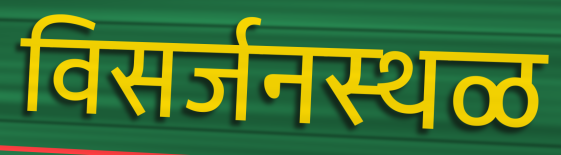
विसर्जनस्थळ